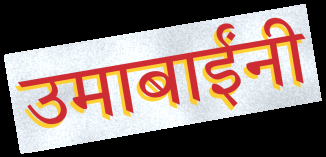
उमाबाईंनी